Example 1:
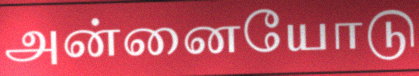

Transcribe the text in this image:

அன்னையோடு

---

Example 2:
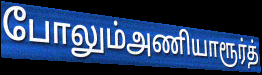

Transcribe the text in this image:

போலும்அணியாரூர்த்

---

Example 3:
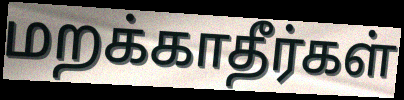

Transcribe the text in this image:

மறக்காதீர்கள்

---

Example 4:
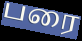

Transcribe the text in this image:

பரை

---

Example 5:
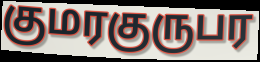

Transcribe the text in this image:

குமரகுருபர